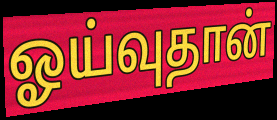
ஓய்வுதான்